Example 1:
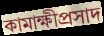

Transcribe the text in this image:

কামাক্ষীপ্রসাদ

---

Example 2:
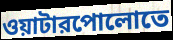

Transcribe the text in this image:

ওয়াটারপোলোতে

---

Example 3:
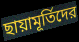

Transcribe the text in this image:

ছায়ামূর্তিদের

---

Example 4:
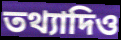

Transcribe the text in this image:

তথ্যাদিও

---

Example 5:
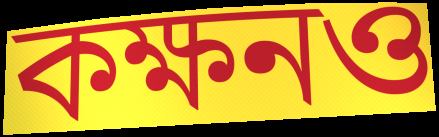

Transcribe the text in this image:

কক্ষনও